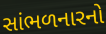
સાંભળનારનો